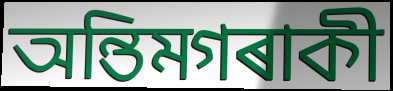
অন্তিমগৰাকী